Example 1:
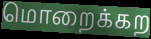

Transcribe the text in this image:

மொறைக்கற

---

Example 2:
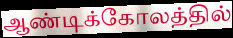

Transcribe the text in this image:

ஆண்டிக்கோலத்தில்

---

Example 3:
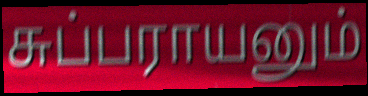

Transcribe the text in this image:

சுப்பராயனும்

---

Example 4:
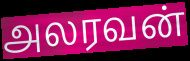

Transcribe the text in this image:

அலரவன்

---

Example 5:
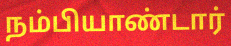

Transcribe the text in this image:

நம்பியாண்டார்